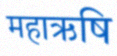
महाऋषि